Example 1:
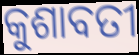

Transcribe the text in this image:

କୁଶାବତୀ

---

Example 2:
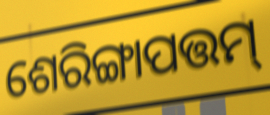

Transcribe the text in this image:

ଶେରିଙ୍ଗାପତ୍ତମ୍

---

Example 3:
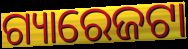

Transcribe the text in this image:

ଗ୍ୟାରେଜଟା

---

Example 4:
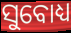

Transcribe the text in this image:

ସୁବୋଧ୍ୟ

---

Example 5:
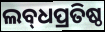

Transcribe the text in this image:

ଲବ୍‌ଧପ୍ରତିଷ୍ଠ